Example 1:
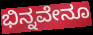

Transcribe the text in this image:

ಭಿನ್ನವೇನೂ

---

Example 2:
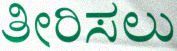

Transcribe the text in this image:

ತೀರಿಸಲು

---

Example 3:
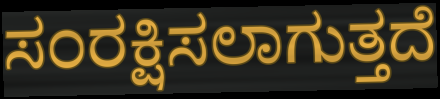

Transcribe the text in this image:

ಸಂರಕ್ಷಿಸಲಾಗುತ್ತದೆ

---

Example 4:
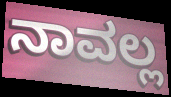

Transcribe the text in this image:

ನಾವಲ್ಲ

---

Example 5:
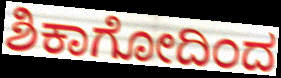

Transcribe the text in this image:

ಶಿಕಾಗೋದಿಂದ